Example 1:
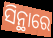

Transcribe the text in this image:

ସିନ୍ଥାରେ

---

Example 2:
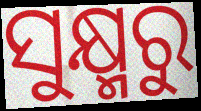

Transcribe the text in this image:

ସୁକ୍ଷ୍ମରୁ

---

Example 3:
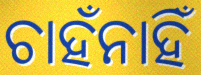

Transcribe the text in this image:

ଚାହଁନାହିଁ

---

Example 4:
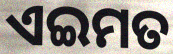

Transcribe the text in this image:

ଏଇମତ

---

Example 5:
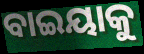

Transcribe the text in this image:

ବାଇୟାକୁ